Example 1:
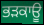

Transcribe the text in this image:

ਭੜਕਾਊ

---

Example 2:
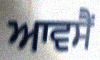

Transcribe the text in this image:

ਆਵਸੈਂ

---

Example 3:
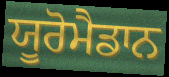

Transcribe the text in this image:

ਯੂਰੋਮੈਡਾਨ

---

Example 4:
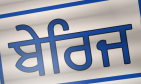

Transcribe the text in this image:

ਬੇਰਿਜ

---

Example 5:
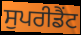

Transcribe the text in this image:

ਸੁਪਰੀਡੈਂਟ